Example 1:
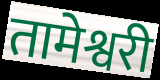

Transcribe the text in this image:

तामेश्वरी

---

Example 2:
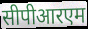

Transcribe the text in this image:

सीपीआरएम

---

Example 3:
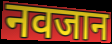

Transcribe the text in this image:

नवजान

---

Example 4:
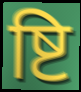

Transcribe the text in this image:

ष्टि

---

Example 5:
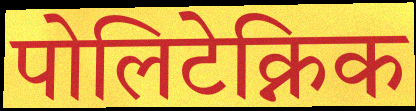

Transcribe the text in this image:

पोलिटेक्निक